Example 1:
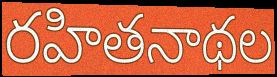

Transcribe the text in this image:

రహితనాథల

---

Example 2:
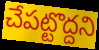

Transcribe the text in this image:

చేపట్టొద్దని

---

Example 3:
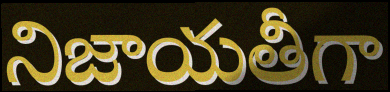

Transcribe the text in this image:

నిజాయతీగా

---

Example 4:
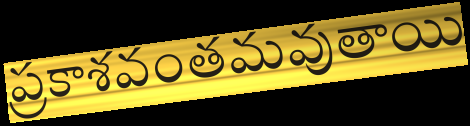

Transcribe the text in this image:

ప్రకాశవంతమవుతాయి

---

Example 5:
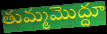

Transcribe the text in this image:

తుమ్మమొద్దూ